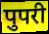
पुपरी